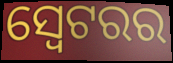
ସ୍ୱେଟରର